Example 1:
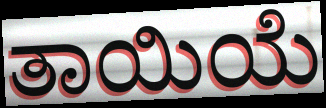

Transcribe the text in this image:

ತಾಯಿಯೆ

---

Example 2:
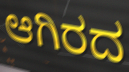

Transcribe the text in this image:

ಆಗಿರದ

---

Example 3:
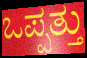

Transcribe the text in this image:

ಒಪ್ಪತ್ತು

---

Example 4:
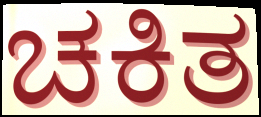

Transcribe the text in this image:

ಚಕಿತ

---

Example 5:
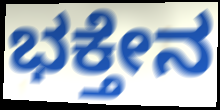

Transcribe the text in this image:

ಭಕ್ತೇನ